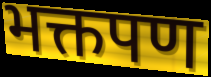
भक्तपण